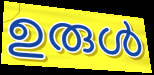
ഉരുൾ